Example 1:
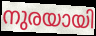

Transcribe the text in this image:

നുരയായി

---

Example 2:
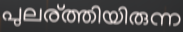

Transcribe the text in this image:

പുലര്ത്തിയിരുന്ന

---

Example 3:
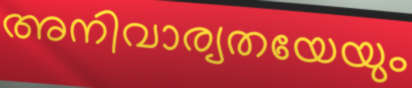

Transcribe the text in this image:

അനിവാര്യതയേയും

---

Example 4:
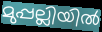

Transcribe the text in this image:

മുപ്പല്ലിയിൽ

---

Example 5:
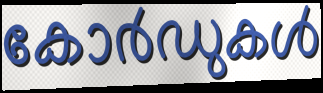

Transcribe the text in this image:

കോർഡുകൾ